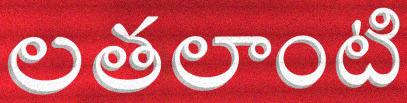
లతలాంటి